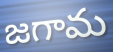
జగామ